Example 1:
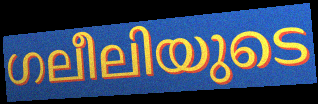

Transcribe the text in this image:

ഗലീലിയുടെ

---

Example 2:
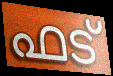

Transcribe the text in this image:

ഫട്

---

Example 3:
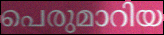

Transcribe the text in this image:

പെരുമാറിയ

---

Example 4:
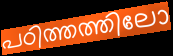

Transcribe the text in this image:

പഠിത്തത്തിലോ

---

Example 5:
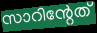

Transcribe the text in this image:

സാറിന്റേത്